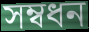
সম্বধন